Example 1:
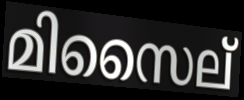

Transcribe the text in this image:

മിസൈല്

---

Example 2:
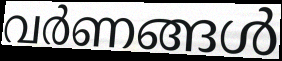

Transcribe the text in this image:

വർണങ്ങൾ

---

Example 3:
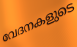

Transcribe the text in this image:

വേദനകളുടെ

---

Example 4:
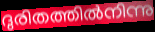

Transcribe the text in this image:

ദുരിതത്തിൽനിന്നു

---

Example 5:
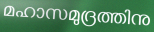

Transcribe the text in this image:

മഹാസമുദ്രത്തിനു